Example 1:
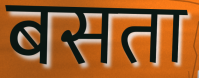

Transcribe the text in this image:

बसता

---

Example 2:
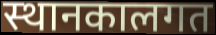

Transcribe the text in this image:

स्थानकालगत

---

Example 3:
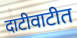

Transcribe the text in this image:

दाटीवाटीत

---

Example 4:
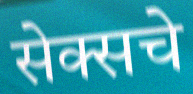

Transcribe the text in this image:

सेक्सचे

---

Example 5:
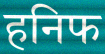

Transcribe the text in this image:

हनिफ